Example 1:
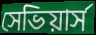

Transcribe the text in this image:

সেভিয়ার্স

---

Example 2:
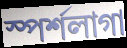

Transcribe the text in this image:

স্পর্শলাগা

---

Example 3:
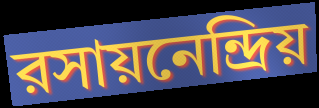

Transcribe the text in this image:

রসায়নেন্দ্রিয়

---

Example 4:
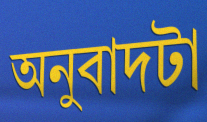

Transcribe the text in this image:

অনুবাদটা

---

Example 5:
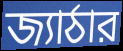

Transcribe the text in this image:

জ্যাঠার